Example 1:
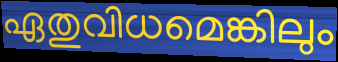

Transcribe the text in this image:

ഏതുവിധമെങ്കിലും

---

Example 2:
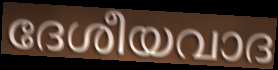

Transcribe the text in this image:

ദേശീയവാദ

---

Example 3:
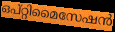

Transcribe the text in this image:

ഒപ്റ്റിമൈസേഷൻ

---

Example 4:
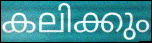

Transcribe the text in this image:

കലിക്കും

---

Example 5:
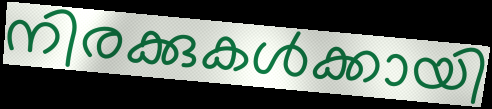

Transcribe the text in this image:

നിരക്കുകൾക്കായി